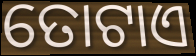
ତୋଟାଏ